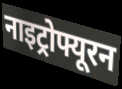
नाइट्रोफ्यूरन